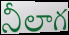
నీలాగ